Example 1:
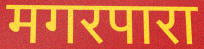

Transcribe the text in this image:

मगरपारा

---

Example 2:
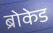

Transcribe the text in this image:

ब्रोकेड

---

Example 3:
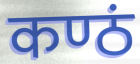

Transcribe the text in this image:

कण्ठं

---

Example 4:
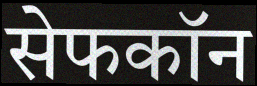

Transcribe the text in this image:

सेफकॉन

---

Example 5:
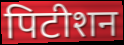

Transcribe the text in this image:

पिटीशन